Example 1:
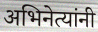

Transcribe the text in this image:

अभिनेत्यांनी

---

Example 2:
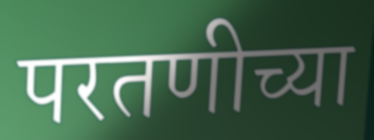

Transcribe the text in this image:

परतणीच्या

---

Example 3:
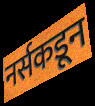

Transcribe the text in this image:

नर्सकडून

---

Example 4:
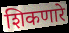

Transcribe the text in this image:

शिकणारे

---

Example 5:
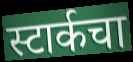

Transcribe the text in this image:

स्टार्कचा